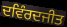
ਦਵਿੰਰਦਜੀਤ